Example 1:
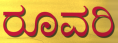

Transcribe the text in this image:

ರೂವರಿ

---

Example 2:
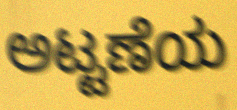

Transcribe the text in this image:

ಅಟ್ಟಣೆಯ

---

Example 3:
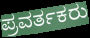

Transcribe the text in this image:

ಪ್ರವರ್ತಕರು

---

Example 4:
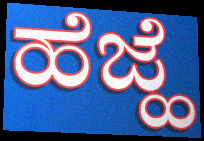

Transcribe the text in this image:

ಹೆಜ್ಹೆ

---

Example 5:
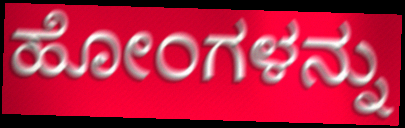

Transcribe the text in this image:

ಹೋಂಗಳನ್ನು